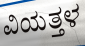
ವಿಯತ್ತಳ